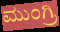
ಮುಂಗ್ರಿ